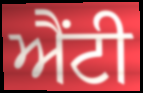
ਐਂਟੀ